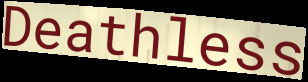
Deathless